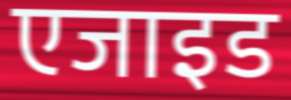
एजाइड